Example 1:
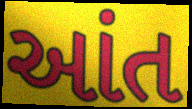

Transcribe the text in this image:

આંત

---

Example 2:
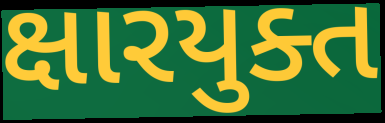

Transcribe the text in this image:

ક્ષારયુક્ત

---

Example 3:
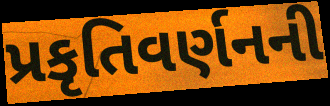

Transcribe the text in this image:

પ્રકૃતિવર્ણનની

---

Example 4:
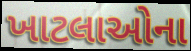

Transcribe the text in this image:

ખાટલાઓના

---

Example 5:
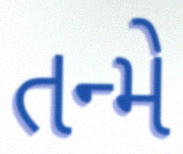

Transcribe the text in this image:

તન્મે